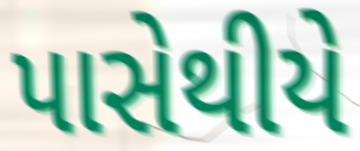
પાસેથીયે